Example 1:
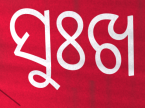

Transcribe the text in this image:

ସୁଃଖ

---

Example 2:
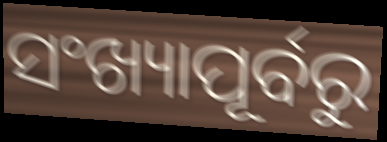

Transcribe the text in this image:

ସଂଖ୍ୟାପୂର୍ବରୁ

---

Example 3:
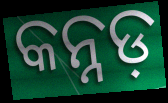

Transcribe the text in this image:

କନ୍ନଡ଼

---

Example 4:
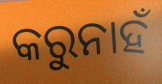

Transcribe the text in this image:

କରୁନାହଁ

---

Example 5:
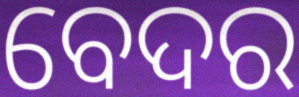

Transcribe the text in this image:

ବେଦର